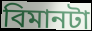
বিমানটা